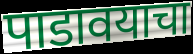
पाडावयाचा